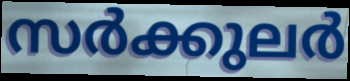
സർക്കുലർ